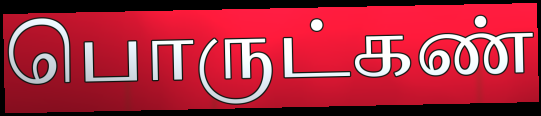
பொருட்கண்